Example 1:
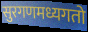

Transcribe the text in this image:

सुरगणमध्यगतो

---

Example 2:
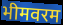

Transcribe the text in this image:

भीमवरम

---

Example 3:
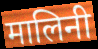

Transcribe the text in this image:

मालिनी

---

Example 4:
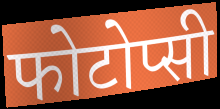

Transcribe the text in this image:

फोटोप्सी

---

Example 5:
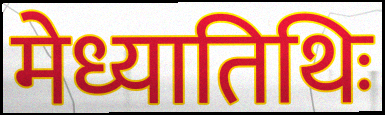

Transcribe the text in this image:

मेध्यातिथिः